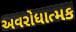
અવરોધાત્મક